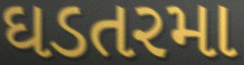
ઘડતરમા